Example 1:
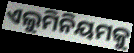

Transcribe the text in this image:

ଏଲୁମିନିୟମକୁ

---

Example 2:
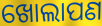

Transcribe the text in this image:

ଖୋଲାପଣ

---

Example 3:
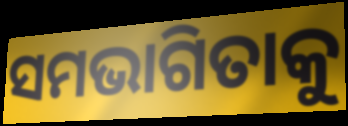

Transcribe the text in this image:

ସମଭାଗିତାକୁ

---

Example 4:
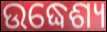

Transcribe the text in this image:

ଉଦ୍ଧେଶ୍ୟ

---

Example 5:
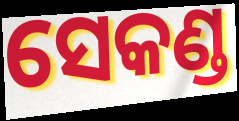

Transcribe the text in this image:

ସେକଣ୍ଡ